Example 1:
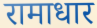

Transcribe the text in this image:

रामाधार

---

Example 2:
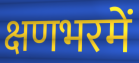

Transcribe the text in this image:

क्षणभरमें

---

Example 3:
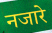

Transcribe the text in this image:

नजारे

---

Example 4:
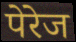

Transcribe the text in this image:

पेरेज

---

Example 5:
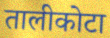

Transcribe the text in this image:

तालीकोटा